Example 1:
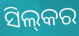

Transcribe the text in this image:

ସିଲ୍‍କର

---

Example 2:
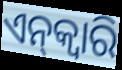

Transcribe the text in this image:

ଏନ୍‌କ୍ୱାରି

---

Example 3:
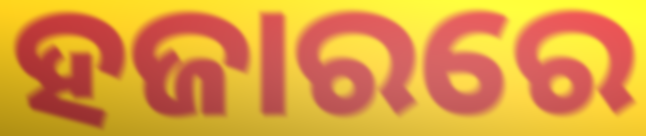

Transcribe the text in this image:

ହଜାରରେ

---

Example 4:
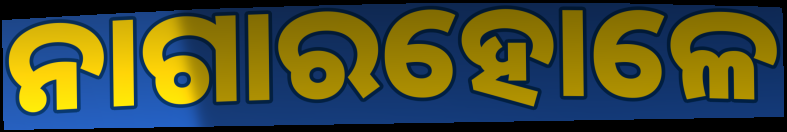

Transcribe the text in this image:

ନାଗାରହୋଳେ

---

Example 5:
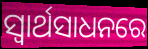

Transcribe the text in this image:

ସ୍ବାର୍ଥସାଧନରେ